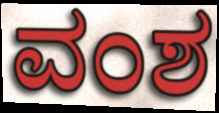
ವಂಶ